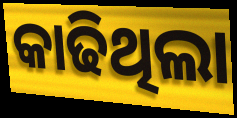
କାଢିଥିଲା